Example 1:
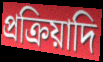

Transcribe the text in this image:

প্রক্রিয়াদি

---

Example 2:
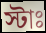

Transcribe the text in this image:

স্টাঃ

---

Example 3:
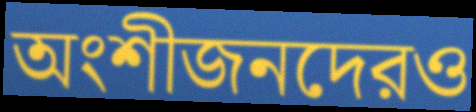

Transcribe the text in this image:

অংশীজনদেরও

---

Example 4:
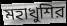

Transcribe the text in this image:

মহাখুশির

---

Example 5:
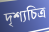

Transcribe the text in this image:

দৃশ্যচিত্র